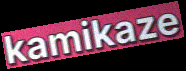
kamikaze